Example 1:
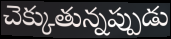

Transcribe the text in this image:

చెక్కుతున్నప్పుడు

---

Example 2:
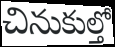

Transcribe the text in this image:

చినుకుల్తో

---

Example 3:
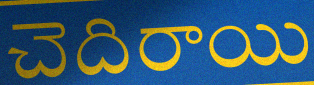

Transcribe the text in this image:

చెదిరాయి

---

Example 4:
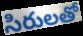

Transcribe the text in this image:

సిరులతో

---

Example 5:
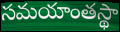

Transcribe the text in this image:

సమయాంతస్థా